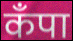
कँपा